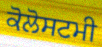
ਕੋਲੋਸਟਮੀ